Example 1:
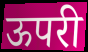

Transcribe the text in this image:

ऊपरी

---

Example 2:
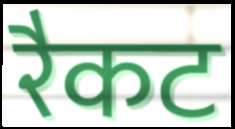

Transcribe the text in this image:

रैकट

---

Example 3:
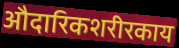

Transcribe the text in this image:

औदारिकशरीरकाय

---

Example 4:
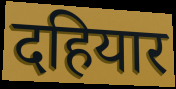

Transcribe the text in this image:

दहियार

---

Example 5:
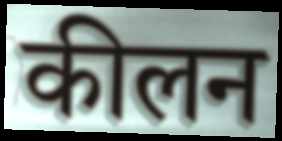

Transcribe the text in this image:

कीलन